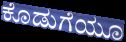
ಕೊಡುಗೆಯೂ